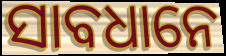
ସାବଧାନେ